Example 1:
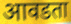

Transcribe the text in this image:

आवडता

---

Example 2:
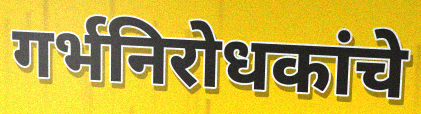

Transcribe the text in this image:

गर्भनिरोधकांचे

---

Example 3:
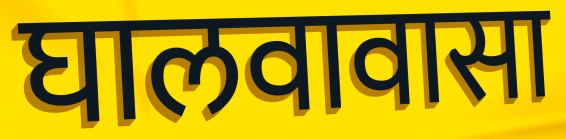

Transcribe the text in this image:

घालवावासा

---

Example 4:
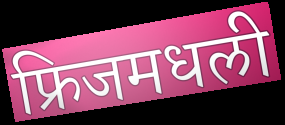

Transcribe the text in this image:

फ्रिजमधली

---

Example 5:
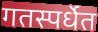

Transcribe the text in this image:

गतस्पर्धेत